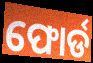
ଫୋର୍ଡ